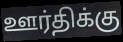
ஊர்திக்கு